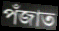
পঁজাত